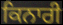
ਕਿਨਾਰੀ